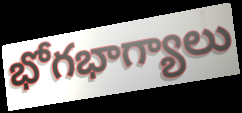
భోగభాగ్యాలు